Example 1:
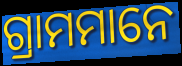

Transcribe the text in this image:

ଗ୍ରାମମାନେ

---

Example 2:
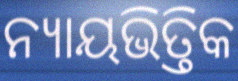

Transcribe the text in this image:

ନ୍ୟାୟଭିତ୍ତିକ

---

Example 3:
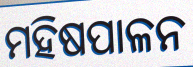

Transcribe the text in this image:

ମହିଷପାଳନ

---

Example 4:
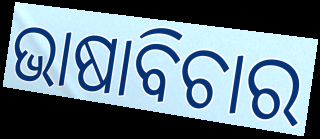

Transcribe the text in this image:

ଭାଷାବିଚାର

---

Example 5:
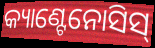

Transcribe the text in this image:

କ୍ୟାଣ୍ଟେନୋସିସ୍